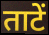
ताटें